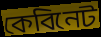
কেবিনেট